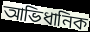
আভিধানিক